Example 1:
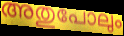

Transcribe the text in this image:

അതുപോലും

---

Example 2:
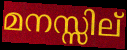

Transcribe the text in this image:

മനസ്സില്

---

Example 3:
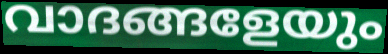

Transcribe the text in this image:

വാദങ്ങളേയും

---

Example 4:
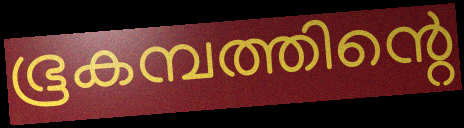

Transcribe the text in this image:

ഭൂകമ്പത്തിന്റെ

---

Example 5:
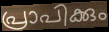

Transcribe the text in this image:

പ്രാപിക്കും